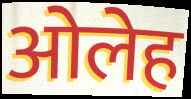
ओलेह